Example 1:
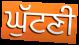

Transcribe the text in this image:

ਘੁੱਟਣੀ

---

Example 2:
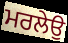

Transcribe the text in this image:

ਮਰਲੇਉ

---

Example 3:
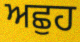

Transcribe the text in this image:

ਅਛੁਹ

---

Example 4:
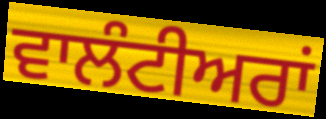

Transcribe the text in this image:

ਵਾਲੰਟੀਅਰਾਂ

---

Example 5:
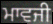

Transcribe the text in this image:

ਮਾਵਜੀ